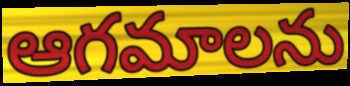
ఆగమాలను